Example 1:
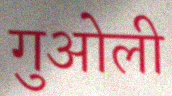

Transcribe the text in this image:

गुओली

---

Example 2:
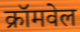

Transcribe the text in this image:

क्रॉमवेल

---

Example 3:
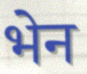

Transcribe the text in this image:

भेन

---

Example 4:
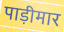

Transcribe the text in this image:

पाड़ीमार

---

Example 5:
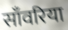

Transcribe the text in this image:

साँवरिया